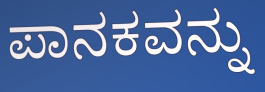
ಪಾನಕವನ್ನು